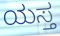
ಯಸ್ತ